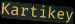
Kartikey